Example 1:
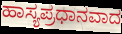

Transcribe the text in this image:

ಹಾಸ್ಯಪ್ರಧಾನವಾದ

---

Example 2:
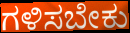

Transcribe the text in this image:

ಗಳಿಸಬೇಕು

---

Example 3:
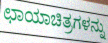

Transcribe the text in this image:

ಛಾಯಾಚಿತ್ರಗಳನ್ನು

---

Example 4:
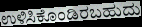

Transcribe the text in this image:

ಉಳಿಸಿಕೊಂಡಿರಬಹುದು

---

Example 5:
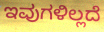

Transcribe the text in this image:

ಇವುಗಳಿಲ್ಲದೆ